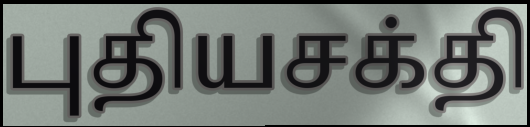
புதியசக்தி